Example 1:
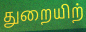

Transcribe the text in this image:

துறையிற்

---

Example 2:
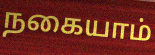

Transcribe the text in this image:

நகையாம்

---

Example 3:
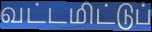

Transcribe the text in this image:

வட்டமிட்டுப்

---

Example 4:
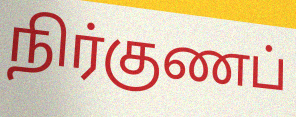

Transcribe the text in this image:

நிர்குணப்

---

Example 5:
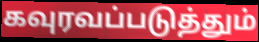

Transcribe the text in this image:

கவுரவப்படுத்தும்